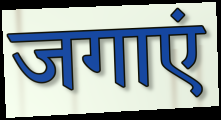
जगाएं